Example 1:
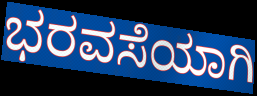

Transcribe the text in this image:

ಭರವಸೆಯಾಗಿ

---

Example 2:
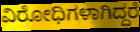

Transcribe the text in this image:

ವಿರೋಧಿಗಳಾಗಿದ್ದರೆ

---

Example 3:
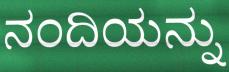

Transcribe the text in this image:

ನಂದಿಯನ್ನು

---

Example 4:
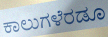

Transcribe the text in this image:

ಕಾಲುಗಳೆರಡೂ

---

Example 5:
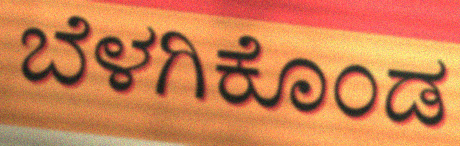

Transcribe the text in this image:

ಬೆಳಗಿಕೊಂಡ